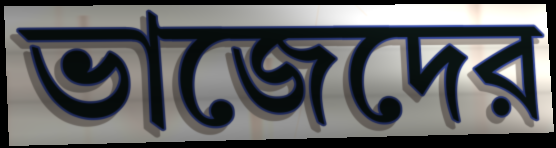
ভাজেদের